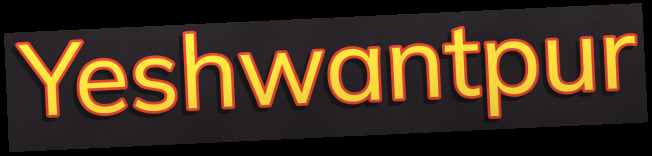
Yeshwantpur